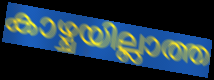
കാഴ്ചയില്ലാത്ത